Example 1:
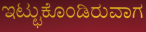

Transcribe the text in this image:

ಇಟ್ಟುಕೊಂಡಿರುವಾಗ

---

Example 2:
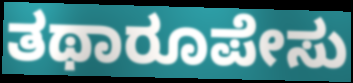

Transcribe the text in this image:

ತಥಾರೂಪೇಸು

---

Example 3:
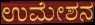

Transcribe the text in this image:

ಉಮೇಶನ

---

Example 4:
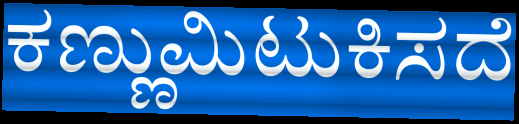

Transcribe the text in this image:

ಕಣ್ಣುಮಿಟುಕಿಸದೆ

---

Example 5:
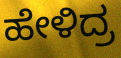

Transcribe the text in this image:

ಹೇಳಿದ್ರ